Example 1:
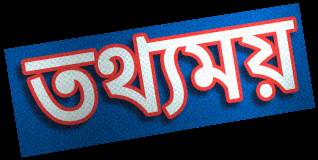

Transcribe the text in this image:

তথ্যময়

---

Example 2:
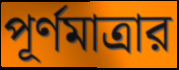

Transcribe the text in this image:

পূর্ণমাত্রার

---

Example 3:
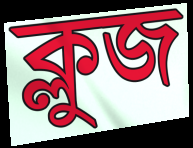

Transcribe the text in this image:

ক্লুজ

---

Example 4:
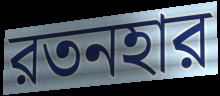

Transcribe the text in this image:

রতনহার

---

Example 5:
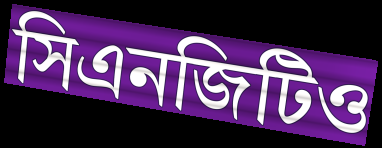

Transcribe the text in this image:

সিএনজিটিও